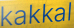
kakkal